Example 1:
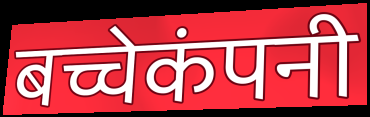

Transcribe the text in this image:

बच्चेकंपनी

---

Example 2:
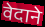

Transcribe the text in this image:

वेदाने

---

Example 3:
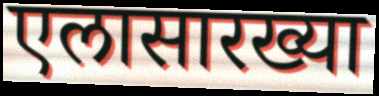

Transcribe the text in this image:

एलासारख्या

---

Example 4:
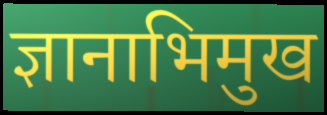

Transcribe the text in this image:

ज्ञानाभिमुख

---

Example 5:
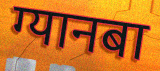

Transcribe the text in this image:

ग्यानबा